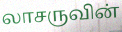
லாசருவின்